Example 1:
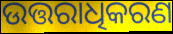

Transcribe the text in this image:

ଉତ୍ତରାଧିକରଣ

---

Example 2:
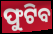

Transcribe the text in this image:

ଫୁଟିବ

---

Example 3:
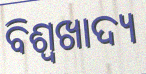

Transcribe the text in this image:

ବିଶ୍ୱଖାଦ୍ୟ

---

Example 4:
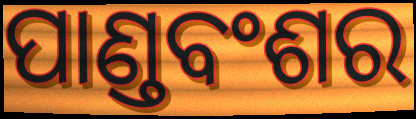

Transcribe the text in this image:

ପାଣ୍ଡବଂଶର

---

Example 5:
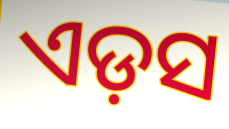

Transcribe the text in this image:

ଏଡ଼ସ